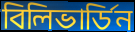
বিলিভার্ডিন